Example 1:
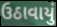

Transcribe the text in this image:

ઉઠાવાયું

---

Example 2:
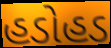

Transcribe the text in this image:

હડોહડ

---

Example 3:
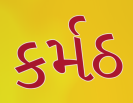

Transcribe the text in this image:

કર્મઠ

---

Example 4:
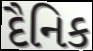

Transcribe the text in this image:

દૈનિક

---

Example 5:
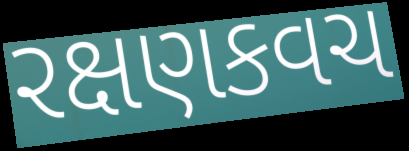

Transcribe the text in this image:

રક્ષણકવચ